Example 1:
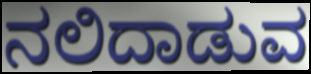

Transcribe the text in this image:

ನಲಿದಾಡುವ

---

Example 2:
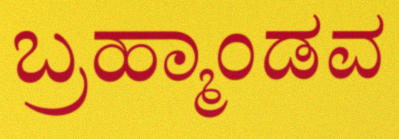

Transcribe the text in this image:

ಬ್ರಹ್ಮಾಂಡವ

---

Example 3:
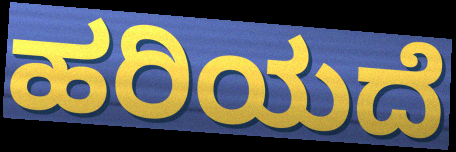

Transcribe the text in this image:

ಹರಿಯದೆ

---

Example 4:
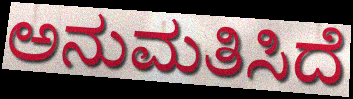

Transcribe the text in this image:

ಅನುಮತಿಸಿದೆ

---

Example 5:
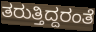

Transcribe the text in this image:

ತರುತ್ತಿದ್ದರಂತೆ